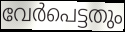
വേർപെട്ടതും